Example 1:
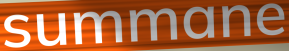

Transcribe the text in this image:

summane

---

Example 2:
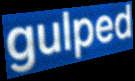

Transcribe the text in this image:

gulped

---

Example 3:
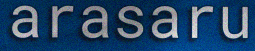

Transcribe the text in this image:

arasaru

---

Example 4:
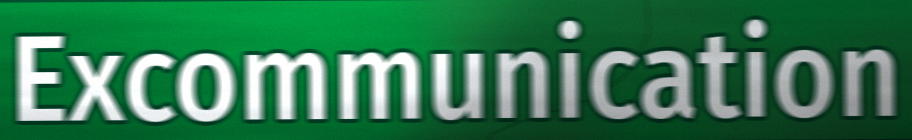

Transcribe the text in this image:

Excommunication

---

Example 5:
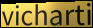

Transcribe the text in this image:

vicharti